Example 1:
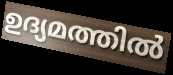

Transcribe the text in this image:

ഉദ്യമത്തിൽ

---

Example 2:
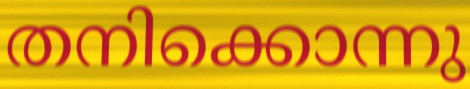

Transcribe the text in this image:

തനിക്കൊന്നു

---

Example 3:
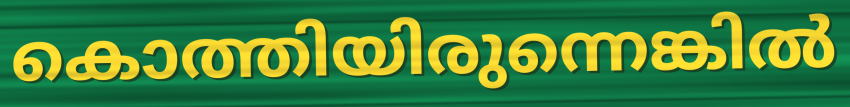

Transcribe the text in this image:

കൊത്തിയിരുന്നെങ്കിൽ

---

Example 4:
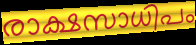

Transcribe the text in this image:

രാക്ഷസാധിപം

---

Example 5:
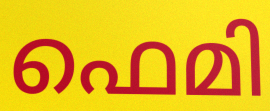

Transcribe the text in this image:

ഫെമി